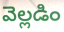
వెల్లడిం